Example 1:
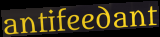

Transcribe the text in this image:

antifeedant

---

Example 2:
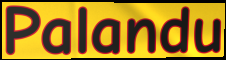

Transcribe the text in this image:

Palandu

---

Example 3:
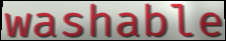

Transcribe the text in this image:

washable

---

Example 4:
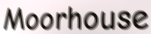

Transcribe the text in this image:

Moorhouse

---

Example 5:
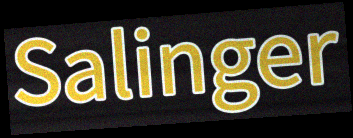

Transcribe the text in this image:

Salinger